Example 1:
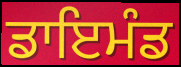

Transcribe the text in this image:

ਡਾਇਮੰਡ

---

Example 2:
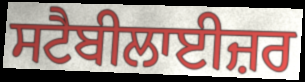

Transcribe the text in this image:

ਸਟੈਬੀਲਾਈਜ਼ਰ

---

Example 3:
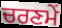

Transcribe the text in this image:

ਚਰਣਮੇਂ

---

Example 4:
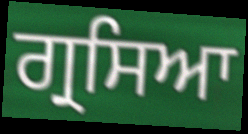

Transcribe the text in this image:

ਗ੍ਰਸਿਆ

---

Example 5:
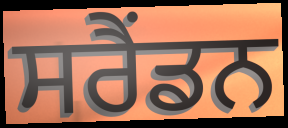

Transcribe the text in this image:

ਸਰੈਂਡਨ